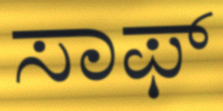
ಸಾಫ್